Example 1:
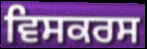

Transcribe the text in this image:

ਵਿਸਕਰਸ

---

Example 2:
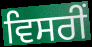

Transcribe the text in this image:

ਵਿਸਰੀਂ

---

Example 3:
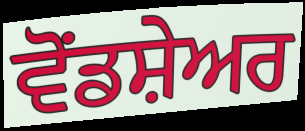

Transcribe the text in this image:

ਵੋਂਡਸ਼ੇਅਰ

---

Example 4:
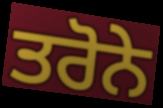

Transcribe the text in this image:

ਤਰੋਨੇ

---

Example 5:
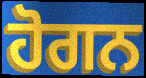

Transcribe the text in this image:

ਹੋਗਨ